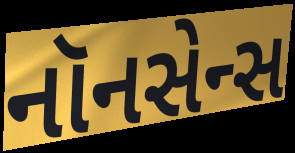
નૉનસેન્સ